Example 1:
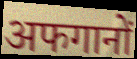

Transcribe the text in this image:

अफगानों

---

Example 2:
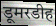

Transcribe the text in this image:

डूमरडीह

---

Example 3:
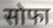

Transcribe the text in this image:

सोफा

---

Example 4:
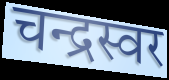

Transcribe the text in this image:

चन्द्रस्वर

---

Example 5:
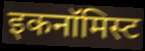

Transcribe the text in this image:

इकनॉमिस्‍ट